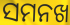
ସମନଖ